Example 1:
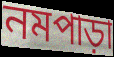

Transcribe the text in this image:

নমপাড়া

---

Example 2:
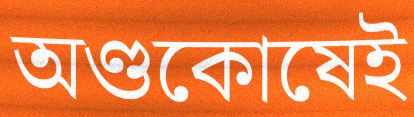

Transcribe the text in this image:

অণ্ডকোষেই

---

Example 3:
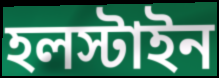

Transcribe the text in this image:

হলস্টাইন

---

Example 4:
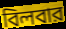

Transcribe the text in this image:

বিলবার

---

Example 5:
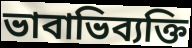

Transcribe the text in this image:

ভাবাভিব্যক্তি